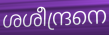
ശശീന്ദ്രനെ